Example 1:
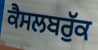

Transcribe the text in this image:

ਕੈਸਲਬਰੁੱਕ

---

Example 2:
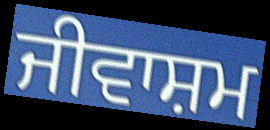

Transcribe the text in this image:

ਜੀਵਾਸ਼ਮ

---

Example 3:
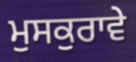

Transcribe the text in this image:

ਮੁਸਕੁਰਾਵੇ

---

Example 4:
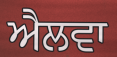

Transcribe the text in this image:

ਐਲਵਾ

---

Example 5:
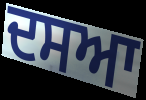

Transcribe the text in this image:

ਦਸਆ